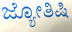
ಜ್ಯೋತಿಷಿ